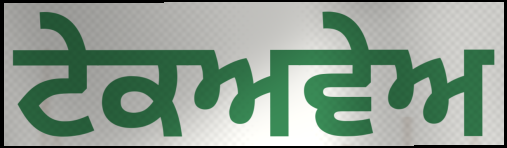
ਟੇਕਅਵੇਅ